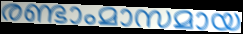
രണ്ടാംമാസമായ